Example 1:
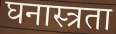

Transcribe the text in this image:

घनास्त्रता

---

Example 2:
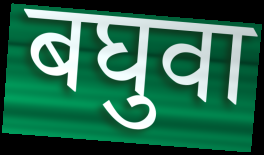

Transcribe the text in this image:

बघुवा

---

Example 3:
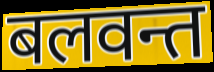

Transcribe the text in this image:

बलवन्‍त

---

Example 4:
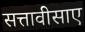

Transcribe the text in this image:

सत्तावीसाए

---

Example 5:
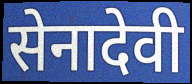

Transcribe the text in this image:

सेनादेवी